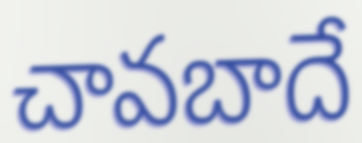
చావబాదే